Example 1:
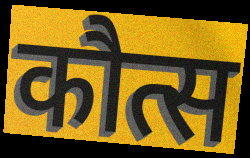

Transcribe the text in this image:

कौत्स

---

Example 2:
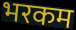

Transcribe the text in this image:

भरकम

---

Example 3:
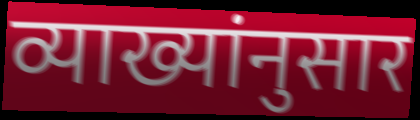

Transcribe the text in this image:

व्याख्यांनुसार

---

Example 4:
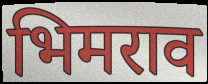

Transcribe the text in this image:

भिमराव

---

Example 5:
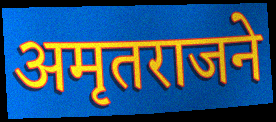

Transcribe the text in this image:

अमृतराजने